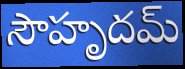
సౌహృదమ్